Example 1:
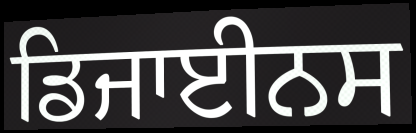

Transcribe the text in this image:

ਡਿਜਾਈਨਸ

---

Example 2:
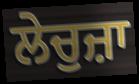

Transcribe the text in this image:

ਲੇਚੁਜ਼ਾ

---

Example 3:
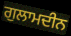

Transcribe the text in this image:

ਗੁਲਾਮਦੀਨ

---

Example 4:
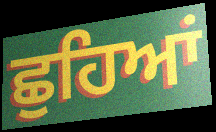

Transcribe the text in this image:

ਛੁਹਿਆਂ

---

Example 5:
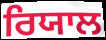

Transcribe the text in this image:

ਰਿਯਾਲ